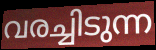
വരച്ചിടുന്ന